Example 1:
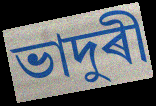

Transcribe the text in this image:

ভাদুৰী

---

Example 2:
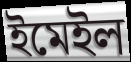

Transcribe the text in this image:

ইমেইল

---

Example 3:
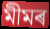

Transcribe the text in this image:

মীমৰ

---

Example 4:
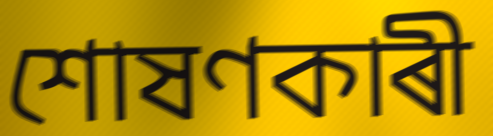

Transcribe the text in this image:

শোষণকাৰী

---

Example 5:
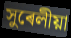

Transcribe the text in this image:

সুৰেলীয়া